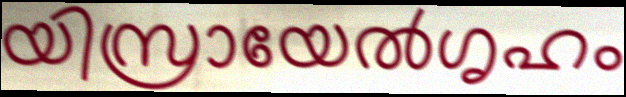
യിസ്രായേൽഗൃഹം